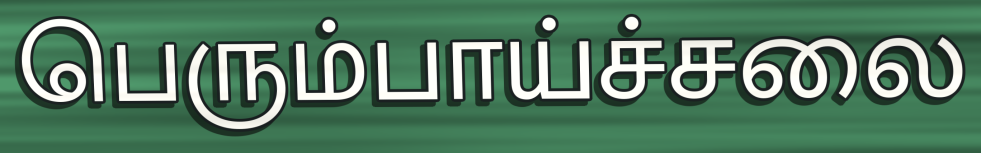
பெரும்பாய்ச்சலை